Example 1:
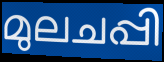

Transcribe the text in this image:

മുലചപ്പി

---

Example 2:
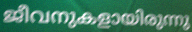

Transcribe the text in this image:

ജീവനുകളായിരുന്നു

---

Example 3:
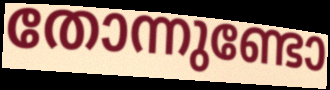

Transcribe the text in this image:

തോന്നുണ്ടോ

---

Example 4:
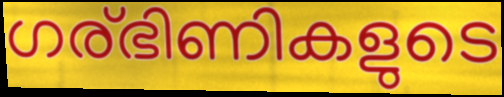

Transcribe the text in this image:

ഗര്ഭിണികളുടെ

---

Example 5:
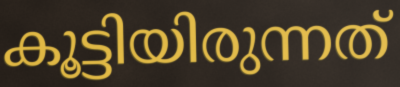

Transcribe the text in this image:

കൂട്ടിയിരുന്നത്